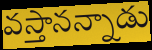
వస్తానన్నాడు